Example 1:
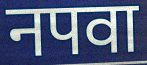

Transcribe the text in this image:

नपवा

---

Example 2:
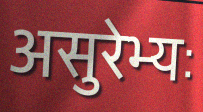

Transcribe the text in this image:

असुरेभ्यः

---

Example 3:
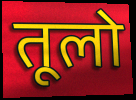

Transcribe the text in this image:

तूलो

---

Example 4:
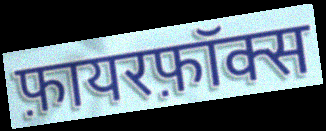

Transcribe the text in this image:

फ़ायरफ़ॉक्स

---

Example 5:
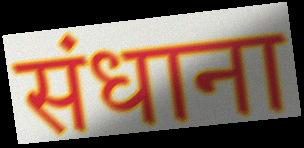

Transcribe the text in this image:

संधाना